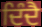
ਦਿੰਦੈ